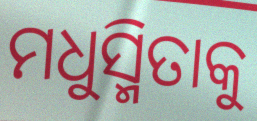
ମଧୁସ୍ମିତାକୁ